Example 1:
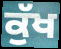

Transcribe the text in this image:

ਕੁੱਖ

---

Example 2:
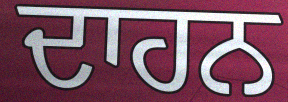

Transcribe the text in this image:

ਦਾਹਨ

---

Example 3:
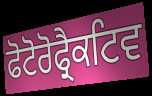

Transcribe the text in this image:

ਫੋਟੋਰੋਫ੍ਰੈਕਟਿਵ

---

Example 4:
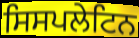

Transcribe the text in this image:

ਸਿਸਪਲੇਟਿਨ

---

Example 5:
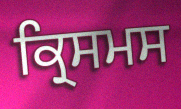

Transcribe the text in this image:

ਕ੍ਰਿਸਮਸ